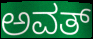
ಅವತ್